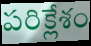
పరిక్లేశం